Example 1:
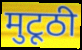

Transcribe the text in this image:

मुटूठी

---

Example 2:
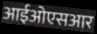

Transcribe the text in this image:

आईओएसआर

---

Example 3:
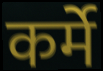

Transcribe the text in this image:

कर्मे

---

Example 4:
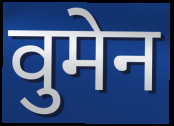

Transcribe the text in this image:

वुमेन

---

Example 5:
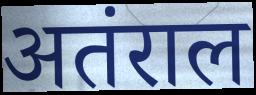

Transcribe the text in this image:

अतंराल